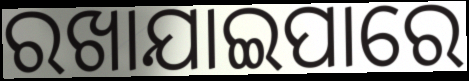
ରଖାଯାଇପାରେ